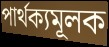
পার্থক্যমূলক